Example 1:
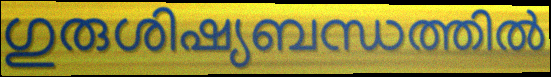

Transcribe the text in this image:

ഗുരുശിഷ്യബന്ധത്തിൽ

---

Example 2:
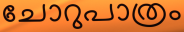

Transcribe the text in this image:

ചോറുപാത്രം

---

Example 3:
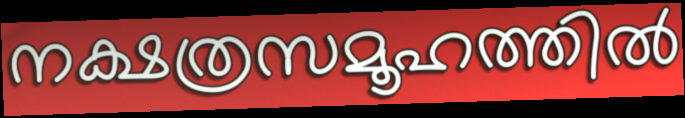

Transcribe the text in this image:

നക്ഷത്രസമൂഹത്തിൽ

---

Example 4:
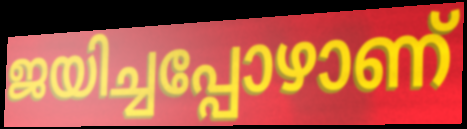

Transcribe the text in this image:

ജയിച്ചപ്പോഴാണ്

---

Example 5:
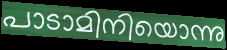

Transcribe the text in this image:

പാടാമിനിയൊന്നു